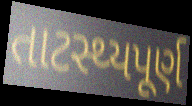
તાટસ્થ્યપૂર્ણ